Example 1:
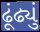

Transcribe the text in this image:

ઢૂંઢ્યું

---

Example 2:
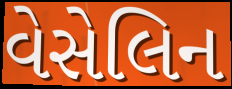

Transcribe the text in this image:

વેસેલિન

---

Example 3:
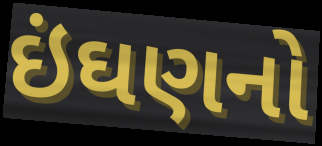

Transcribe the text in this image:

ઇંઘણનો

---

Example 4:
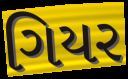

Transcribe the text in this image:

ગિયર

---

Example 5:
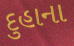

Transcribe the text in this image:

દુહાના